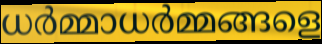
ധർമ്മാധർമ്മങ്ങളെ